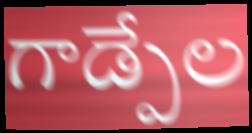
గాడ్పేల